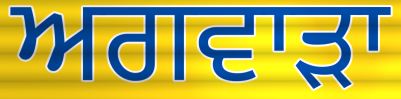
ਅਗਵਾੜਾ